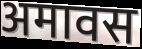
अमावस